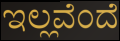
ಇಲ್ಲವೆಂದೆ